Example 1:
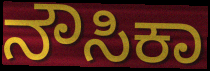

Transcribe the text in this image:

ನೌಸಿಕಾ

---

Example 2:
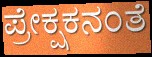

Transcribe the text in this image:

ಪ್ರೇಕ್ಷಕನಂತೆ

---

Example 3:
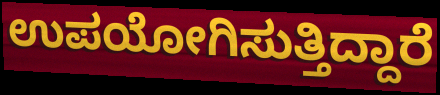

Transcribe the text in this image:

ಉಪಯೋಗಿಸುತ್ತಿದ್ದಾರೆ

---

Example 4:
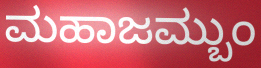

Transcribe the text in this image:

ಮಹಾಜಮ್ಬುಂ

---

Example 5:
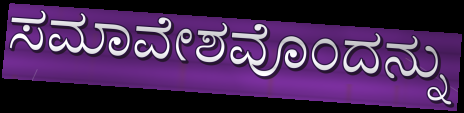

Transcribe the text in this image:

ಸಮಾವೇಶವೊಂದನ್ನು